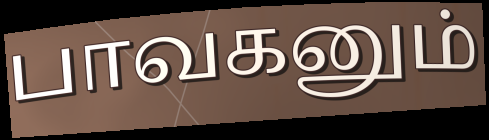
பாவகனும்